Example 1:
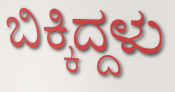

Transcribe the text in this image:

ಬಿಕ್ಕಿದ್ದಳು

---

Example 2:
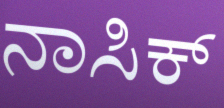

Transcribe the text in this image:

ನಾಸಿಕ್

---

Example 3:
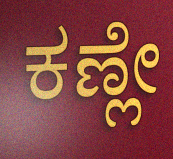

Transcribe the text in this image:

ಕಣ್ಲೇ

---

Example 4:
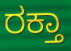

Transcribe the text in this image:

ರಕ್ತಾ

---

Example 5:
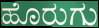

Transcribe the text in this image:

ಹೊರುಗು